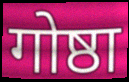
गोष्ठा